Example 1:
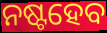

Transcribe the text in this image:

ନଷ୍ଟହେବ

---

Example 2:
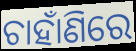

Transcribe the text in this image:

ଚାହାଁଣିରେ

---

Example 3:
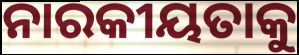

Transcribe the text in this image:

ନାରକୀୟତାକୁ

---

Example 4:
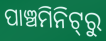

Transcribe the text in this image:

ପାଞ୍ଚମିନିଟ୍‌ରୁ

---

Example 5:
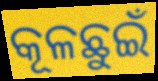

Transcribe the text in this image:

କୂଳଛୁଇଁ